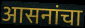
आसनांचा